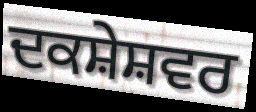
ਦਕਸ਼ੇਸ਼ਵਰ